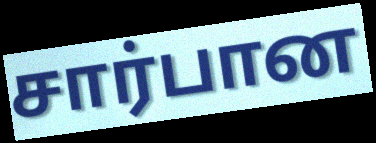
சார்பான